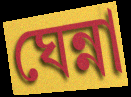
ঘেন্না